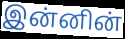
இன்னின்